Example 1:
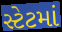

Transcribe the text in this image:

સ્ટેટમાં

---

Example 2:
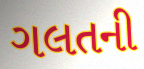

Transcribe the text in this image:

ગલતની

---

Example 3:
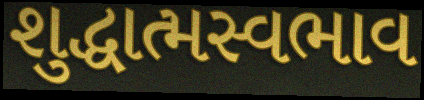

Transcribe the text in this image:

શુદ્ધાત્મસ્વભાવ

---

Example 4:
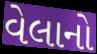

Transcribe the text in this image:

વેલાનો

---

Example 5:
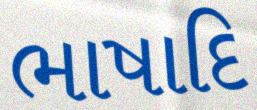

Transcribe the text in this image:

ભાષાદિ